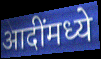
आदींमध्ये